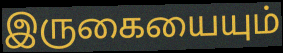
இருகையையும்